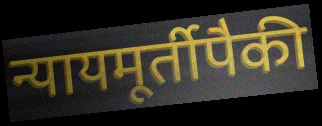
न्यायमूर्तीपैकी